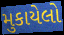
મુકાયેલો